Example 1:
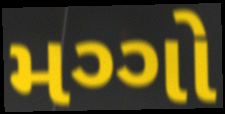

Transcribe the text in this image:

મગ્ગો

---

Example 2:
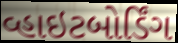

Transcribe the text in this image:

વ્હાઇટબોર્ડિંગ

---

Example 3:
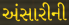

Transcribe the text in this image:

અંસારીની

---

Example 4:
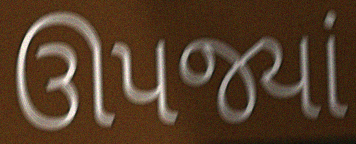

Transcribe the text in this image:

ઊપજ્યાં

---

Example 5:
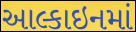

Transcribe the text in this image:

આલ્કાઇનમાં